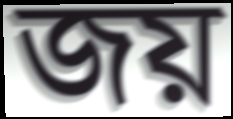
জয়